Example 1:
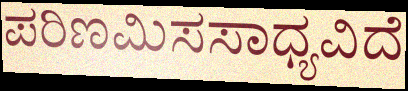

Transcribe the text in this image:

ಪರಿಣಮಿಸಸಾಧ್ಯವಿದೆ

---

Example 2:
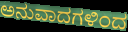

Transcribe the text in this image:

ಅನುವಾದಗಳಿಂದ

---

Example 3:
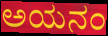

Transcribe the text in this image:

ಅಯನಂ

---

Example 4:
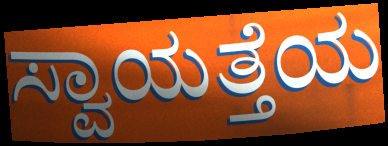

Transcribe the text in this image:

ಸ್ವಾಯತ್ತೆಯ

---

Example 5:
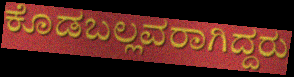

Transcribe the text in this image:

ಕೊಡಬಲ್ಲವರಾಗಿದ್ದರು